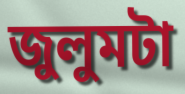
জুলুমটা